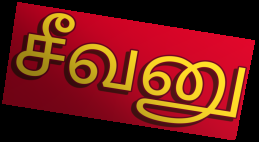
சீவனு